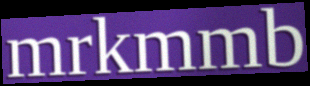
mrkmmb